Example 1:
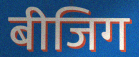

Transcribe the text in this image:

बीजिग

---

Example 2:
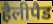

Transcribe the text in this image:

हैलीपैड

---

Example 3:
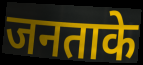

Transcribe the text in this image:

जनताके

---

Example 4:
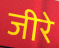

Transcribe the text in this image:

जीरे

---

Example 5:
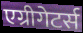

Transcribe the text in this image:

एग्रीगेटर्स